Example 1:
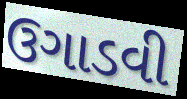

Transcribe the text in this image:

ઉગાડવી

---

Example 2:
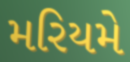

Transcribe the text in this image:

મરિયમે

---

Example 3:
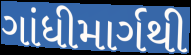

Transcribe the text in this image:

ગાંધીમાર્ગથી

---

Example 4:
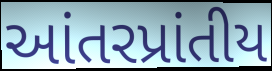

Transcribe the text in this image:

આંતરપ્રાંતીય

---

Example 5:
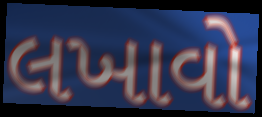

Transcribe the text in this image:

લખાવો